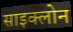
साइक्लोन